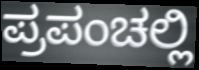
ಪ್ರಪಂಚಲ್ಲಿ